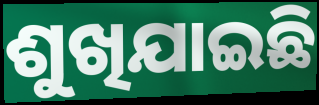
ଶୁଖିଯାଇଛି